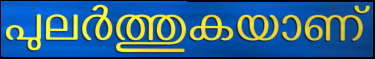
പുലർത്തുകയാണ്